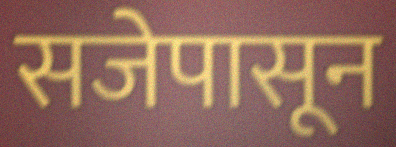
सजेपासून